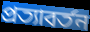
প্ৰত্যাবৰ্তন